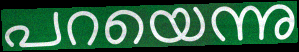
പറയെന്നു